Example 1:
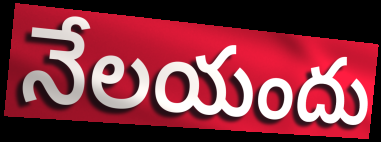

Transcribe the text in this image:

నేలయందు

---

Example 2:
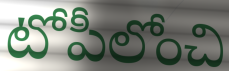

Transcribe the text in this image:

టోపీలోంచి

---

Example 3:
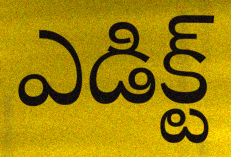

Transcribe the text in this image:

ఎడిక్ట్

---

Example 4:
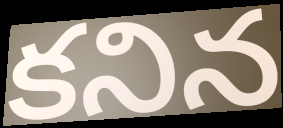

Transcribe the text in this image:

కనిన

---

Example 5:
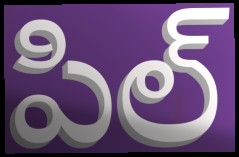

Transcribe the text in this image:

పిల్